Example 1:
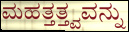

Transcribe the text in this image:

ಮಹತ್ತತ್ತ್ವವನ್ನು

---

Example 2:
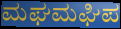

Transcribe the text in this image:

ಮಘಮಘಿಪ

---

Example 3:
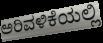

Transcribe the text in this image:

ಅರಿವಳಿಕೆಯಲ್ಲಿ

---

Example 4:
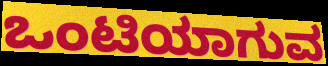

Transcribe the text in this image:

ಒಂಟಿಯಾಗುವ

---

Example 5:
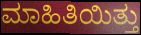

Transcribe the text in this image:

ಮಾಹಿತಿಯಿತ್ತು